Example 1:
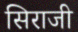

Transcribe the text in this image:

सिराजी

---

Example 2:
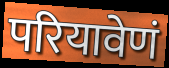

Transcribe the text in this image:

परियावेणं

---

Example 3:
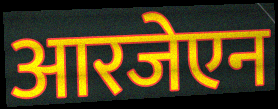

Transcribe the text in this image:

आरजेएन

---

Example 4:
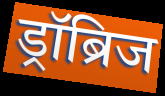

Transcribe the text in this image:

ड्रॉब्रिज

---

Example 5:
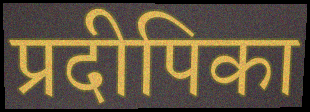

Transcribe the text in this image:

प्रदीपिका